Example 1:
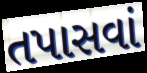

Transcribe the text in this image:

તપાસવાં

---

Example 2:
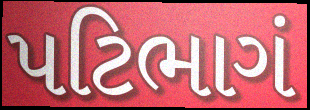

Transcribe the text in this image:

પટિભાગં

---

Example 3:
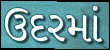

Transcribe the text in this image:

ઉદરમાં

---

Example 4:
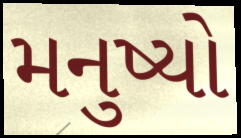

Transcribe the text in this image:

મનુષ્યો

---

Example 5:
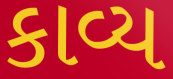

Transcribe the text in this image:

કાવ્ય